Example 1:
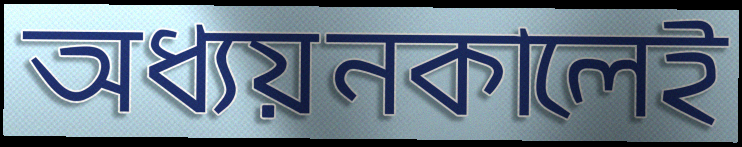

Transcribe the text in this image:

অধ্যয়নকালেই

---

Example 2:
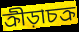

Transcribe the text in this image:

ক্রীড়াচক্র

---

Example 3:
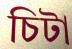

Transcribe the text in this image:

চিটা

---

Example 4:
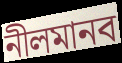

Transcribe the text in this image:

নীলমানব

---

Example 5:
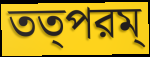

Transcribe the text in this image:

তত্পরম্